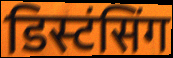
डिस्टंसिंग